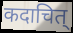
कदाचित्